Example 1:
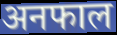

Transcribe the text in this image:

अनफाल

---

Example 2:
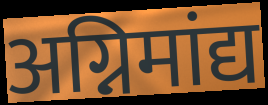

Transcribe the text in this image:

अग्निमांद्य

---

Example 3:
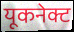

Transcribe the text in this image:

यूकनेक्ट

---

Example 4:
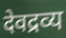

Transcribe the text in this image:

देवद्रव्य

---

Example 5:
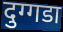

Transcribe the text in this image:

दुग्गडा